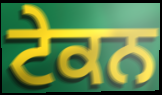
ਟੇਕਨ